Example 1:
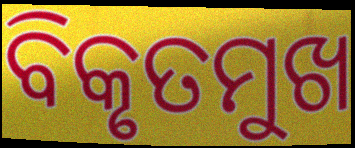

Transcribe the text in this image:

ବିକୃତମୁଖ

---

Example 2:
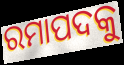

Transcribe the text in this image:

ରମାପଦକୁ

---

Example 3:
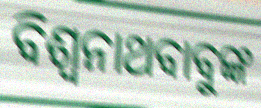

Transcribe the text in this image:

ବିଶ୍ୱନାଥବାବୁଙ୍କ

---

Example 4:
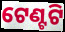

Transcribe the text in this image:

ଟେଣ୍ଟଟି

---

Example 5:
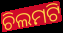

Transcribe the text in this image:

ଚିଲମଟି